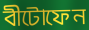
বীটোফেন